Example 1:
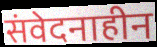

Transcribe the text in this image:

संवेदनाहीन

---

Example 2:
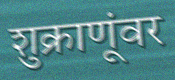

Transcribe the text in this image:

शुक्राणूंवर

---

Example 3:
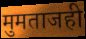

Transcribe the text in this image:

मुमताजही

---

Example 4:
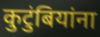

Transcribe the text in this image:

कुटुंबियांना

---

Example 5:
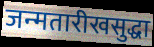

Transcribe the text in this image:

जन्मतारीखसुद्धा